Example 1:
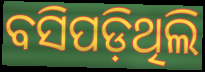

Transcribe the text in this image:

ବସିପଡ଼ିଥିଲି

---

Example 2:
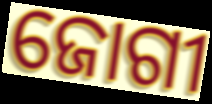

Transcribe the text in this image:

ଜୋଗୀ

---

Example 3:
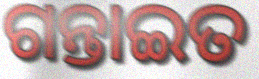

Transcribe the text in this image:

ଗନ୍ତାଇତ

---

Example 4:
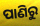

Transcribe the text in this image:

ପାଣିରୁ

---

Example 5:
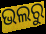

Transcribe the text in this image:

ଭଲରୁ